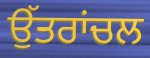
ਉੱਤਰਾਂਚਲ